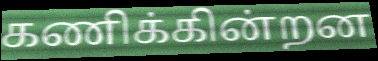
கணிக்கின்றன